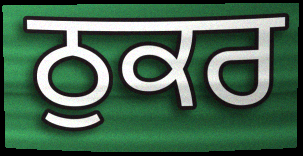
ਠੁਕਰ